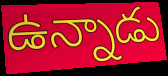
ఉన్నాడు